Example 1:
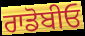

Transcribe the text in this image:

ਰਾਡੋਬੀਓ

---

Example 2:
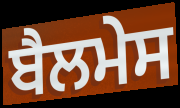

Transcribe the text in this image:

ਬੈਲਮੇਸ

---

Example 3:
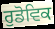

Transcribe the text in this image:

ਰੁਡੋਵਿਕ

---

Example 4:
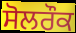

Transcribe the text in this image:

ਸੋਲਰੌਕ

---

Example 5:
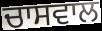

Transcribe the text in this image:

ਚਾਸਵਾਲ